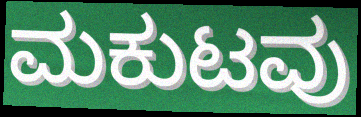
ಮಕುಟವು